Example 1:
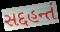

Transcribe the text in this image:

સદ્દહન્તં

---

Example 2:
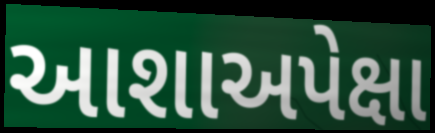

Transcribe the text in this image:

આશાઅપેક્ષા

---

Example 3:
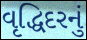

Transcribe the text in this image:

વૃદ્ધિદરનું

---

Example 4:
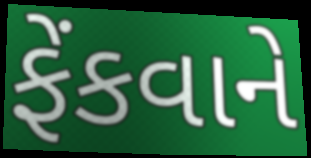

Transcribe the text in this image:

ફેંકવાને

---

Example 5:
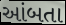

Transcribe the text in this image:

આંબતા